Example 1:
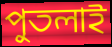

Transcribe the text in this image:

পুতলাই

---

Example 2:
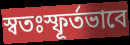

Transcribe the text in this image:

স্বতঃস্ফূৰ্তভাবে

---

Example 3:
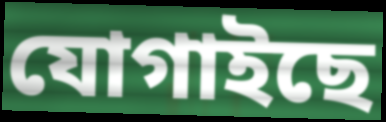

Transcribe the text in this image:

যোগাইছে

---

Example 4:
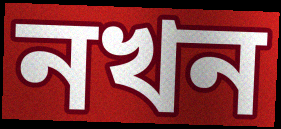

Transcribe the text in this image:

নখন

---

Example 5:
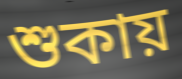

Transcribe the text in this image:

শুকায়